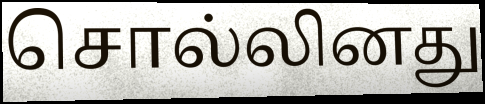
சொல்லினது